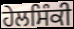
ਹੇਲਸਿੰਕੀ